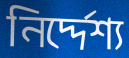
নির্দ্দেশ্য